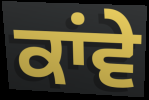
ਕਾਂਵੇ